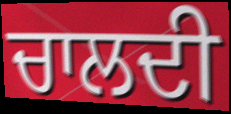
ਚਾਲਦੀ